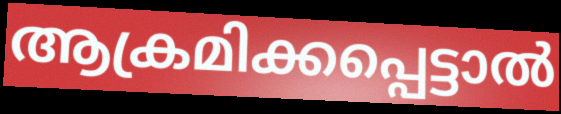
ആക്രമിക്കപ്പെട്ടാൽ